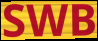
SWB